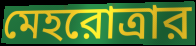
মেহরোত্রার